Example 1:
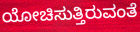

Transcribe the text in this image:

ಯೋಚಿಸುತ್ತಿರುವಂತೆ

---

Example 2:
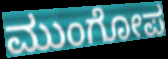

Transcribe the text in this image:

ಮುಂಗೋಪ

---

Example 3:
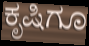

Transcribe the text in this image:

ಕೃಷಿಗೂ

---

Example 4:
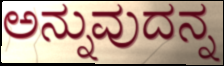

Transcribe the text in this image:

ಅನ್ನುವುದನ್ನ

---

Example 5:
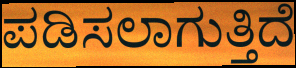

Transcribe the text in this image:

ಪಡಿಸಲಾಗುತ್ತಿದೆ